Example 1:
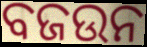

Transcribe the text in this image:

ବଜଉନ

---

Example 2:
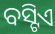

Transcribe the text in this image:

ବସ୍ଟିଏ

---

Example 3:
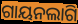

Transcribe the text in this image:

ଗାୟନଲାଗି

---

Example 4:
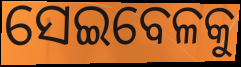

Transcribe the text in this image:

ସେଇବେଳକୁ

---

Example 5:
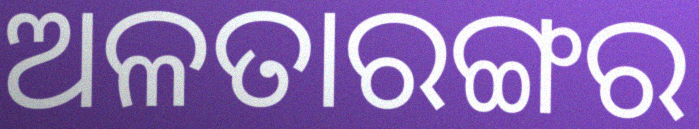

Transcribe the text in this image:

ଅଳତାରଙ୍ଗର